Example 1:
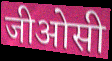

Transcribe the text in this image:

जीओसी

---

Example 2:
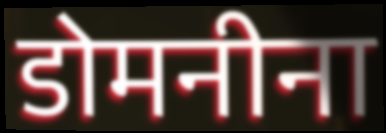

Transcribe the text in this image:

डोमनीना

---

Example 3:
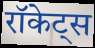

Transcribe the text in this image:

रॉकेट्स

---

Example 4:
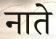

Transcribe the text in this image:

नाते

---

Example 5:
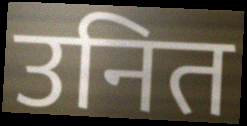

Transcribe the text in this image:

उनित